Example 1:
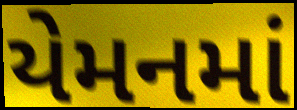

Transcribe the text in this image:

યેમનમાં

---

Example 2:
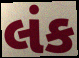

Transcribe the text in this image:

લંક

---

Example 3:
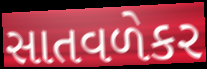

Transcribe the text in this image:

સાતવળેકર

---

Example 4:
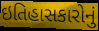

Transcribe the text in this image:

ઇતિહાસકારોનું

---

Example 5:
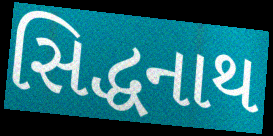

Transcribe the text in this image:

સિદ્ધનાથ